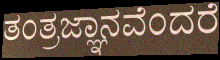
ತಂತ್ರಜ್ಞಾನವೆಂದರೆ